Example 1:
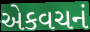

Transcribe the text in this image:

એકવચનં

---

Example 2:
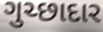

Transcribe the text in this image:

ગુચ્છાદાર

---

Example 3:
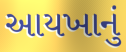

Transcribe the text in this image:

આયખાનું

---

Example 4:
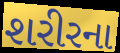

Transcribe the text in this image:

શરીરના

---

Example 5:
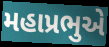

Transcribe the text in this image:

મહાપ્રભુએ